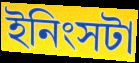
ইনিংসটা